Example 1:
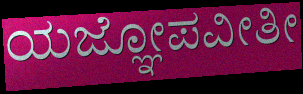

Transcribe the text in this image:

ಯಜ್ಞೋಪವೀತೀ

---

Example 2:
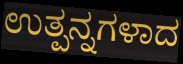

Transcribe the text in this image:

ಉತ್ಪನ್ನಗಳಾದ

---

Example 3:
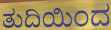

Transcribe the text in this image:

ತುದಿಯಿಂದ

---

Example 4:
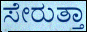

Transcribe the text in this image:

ಸೇರುತ್ತಾ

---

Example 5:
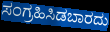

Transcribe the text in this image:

ಸಂಗ್ರಹಿಸಿಡಬಾರದು